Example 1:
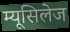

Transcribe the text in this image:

म्यूसिलेज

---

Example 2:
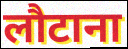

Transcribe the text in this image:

लौटाना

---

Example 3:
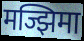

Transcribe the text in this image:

मज्झिमा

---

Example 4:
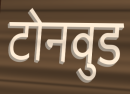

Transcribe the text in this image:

टोनवुड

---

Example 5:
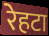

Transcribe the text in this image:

रेहटा